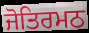
ਜੋਤਿਰਮਠ